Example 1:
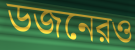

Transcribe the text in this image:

ডজনেরও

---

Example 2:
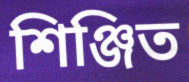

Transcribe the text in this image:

শিঞ্জিত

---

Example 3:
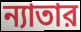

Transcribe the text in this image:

ন্যাতার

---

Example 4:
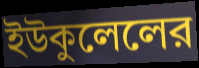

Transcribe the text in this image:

ইউকুলেলের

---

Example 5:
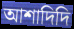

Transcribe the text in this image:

আশাদিদি